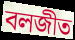
বলজীত